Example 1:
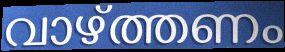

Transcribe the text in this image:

വാഴ്ത്തണം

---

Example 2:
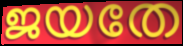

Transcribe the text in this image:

ജയതേ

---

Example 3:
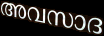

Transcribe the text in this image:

അവസാദ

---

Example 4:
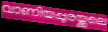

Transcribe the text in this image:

വാണിയപ്പുരയ്ക്കലെ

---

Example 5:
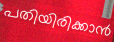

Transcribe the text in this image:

പതിയിരിക്കാൻ